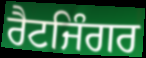
ਰੈਟਜਿੰਗਰ